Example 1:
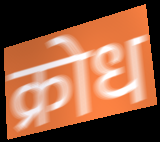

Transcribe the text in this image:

क्रोध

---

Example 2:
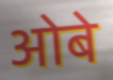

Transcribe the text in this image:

ओबे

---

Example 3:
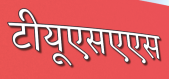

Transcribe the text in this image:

टीयूएसएएस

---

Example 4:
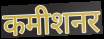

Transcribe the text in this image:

कमीशनर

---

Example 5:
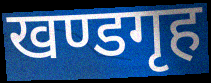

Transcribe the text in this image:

खण्डगृह